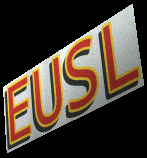
EUSL